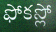
ఫోకస్లో